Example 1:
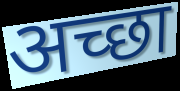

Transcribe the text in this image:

अच्‍छा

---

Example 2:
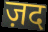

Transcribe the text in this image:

ज़द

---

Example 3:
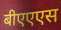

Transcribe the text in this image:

बीएएएस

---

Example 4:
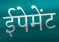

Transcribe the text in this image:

ईपेमेंट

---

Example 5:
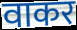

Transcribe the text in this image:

वाकर